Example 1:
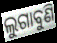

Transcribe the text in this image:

ଲୁଗାବୁଣି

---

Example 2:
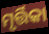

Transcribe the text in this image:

ମୃର୍ତ୍ତିକା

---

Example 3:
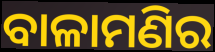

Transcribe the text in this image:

ବାଳାମଣିର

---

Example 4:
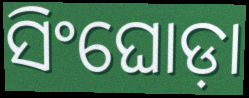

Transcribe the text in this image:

ସିଂଘୋଡ଼ା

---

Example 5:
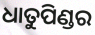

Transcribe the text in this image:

ଧାତୁପିଣ୍ଡର